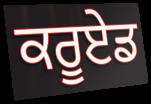
ਕਰੂਏਡ